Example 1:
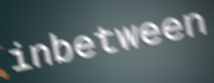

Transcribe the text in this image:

inbetween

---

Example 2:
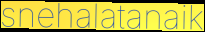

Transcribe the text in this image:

snehalatanaik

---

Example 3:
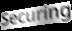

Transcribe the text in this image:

Securing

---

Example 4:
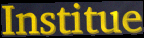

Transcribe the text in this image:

Institue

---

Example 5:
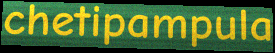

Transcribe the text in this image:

chetipampula